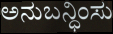
ಅನುಬನ್ಧಿಂಸು